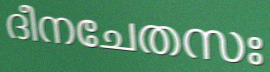
ദീനചേതസഃ